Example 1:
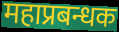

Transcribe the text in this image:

महाप्रबन्धक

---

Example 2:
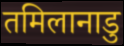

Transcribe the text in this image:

तमिलानाडु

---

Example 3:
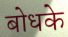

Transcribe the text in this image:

बोधके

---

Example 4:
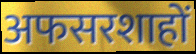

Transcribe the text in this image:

अफसरशाहों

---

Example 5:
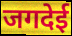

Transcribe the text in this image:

जगदेई